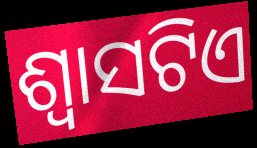
ଶ୍ଵାସଟିଏ